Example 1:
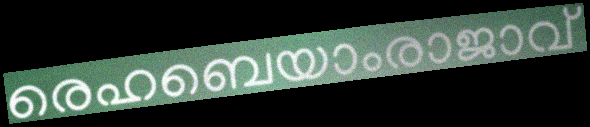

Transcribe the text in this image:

രെഹബെയാംരാജാവ്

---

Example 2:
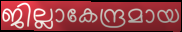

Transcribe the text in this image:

ജില്ലാകേന്ദ്രമായ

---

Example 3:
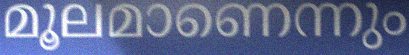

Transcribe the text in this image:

മൂലമാണെന്നും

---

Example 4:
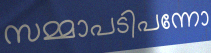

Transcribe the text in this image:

സമ്മാപടിപന്നോ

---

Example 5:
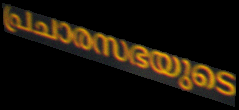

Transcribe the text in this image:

പ്രചാരസഭയുടെ